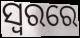
ସ୍ୱରରେ